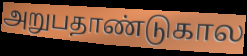
அறுபதாண்டுகால